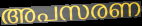
അപസരണ